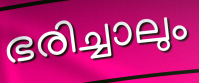
ഭരിച്ചാലും